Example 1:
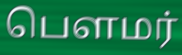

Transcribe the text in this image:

பௌமர்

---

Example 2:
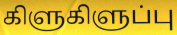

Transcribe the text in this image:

கிளுகிளுப்பு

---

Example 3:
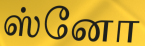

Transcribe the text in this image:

ஸ்னோ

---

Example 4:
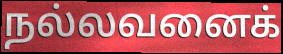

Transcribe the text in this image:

நல்லவனைக்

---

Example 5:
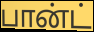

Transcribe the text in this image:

பான்ட்